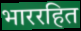
भाररहित